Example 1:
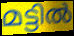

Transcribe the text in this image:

മട്ടിൽ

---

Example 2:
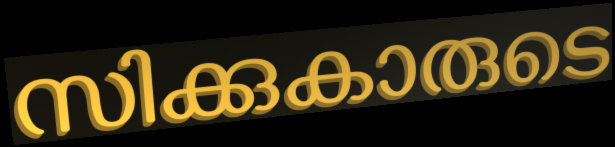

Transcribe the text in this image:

സിക്കുകാരുടെ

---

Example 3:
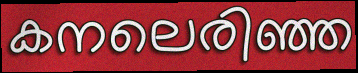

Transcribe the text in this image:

കനലെരിഞ്ഞ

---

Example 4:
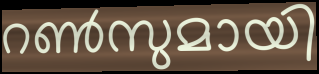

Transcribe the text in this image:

റൺസുമായി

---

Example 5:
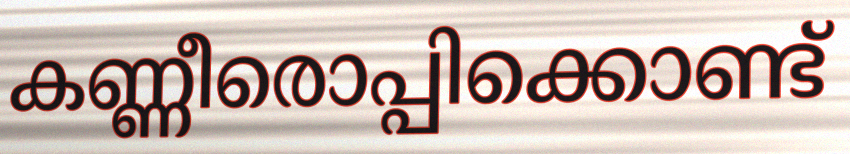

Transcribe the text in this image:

കണ്ണീരൊപ്പിക്കൊണ്ട്